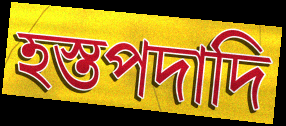
হস্তপদাদি